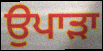
ਉਪਾੜਾ